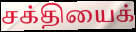
சக்தியைக்